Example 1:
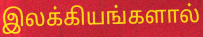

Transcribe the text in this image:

இலக்கியங்களால்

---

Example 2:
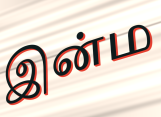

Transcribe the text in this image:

இன்ம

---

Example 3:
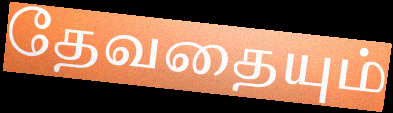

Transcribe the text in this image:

தேவதையும்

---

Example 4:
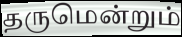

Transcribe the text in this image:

தருமென்றும்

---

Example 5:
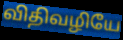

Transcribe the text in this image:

விதிவழியே